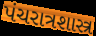
પંચરાત્રશાસ્ત્ર